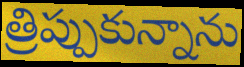
త్రిప్పుకున్నాను